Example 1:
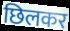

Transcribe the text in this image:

छिलकर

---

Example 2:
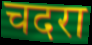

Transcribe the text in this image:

चदरा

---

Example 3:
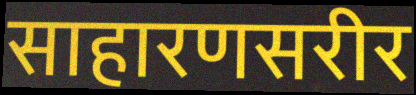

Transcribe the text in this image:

साहारणसरीर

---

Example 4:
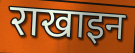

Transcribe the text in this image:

राखाइन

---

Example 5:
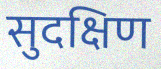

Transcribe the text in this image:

सुदक्षिण